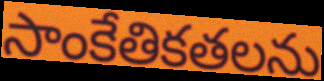
సాంకేతికతలను